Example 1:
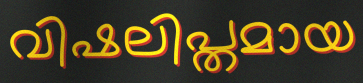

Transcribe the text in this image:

വിഷലിപ്തമായ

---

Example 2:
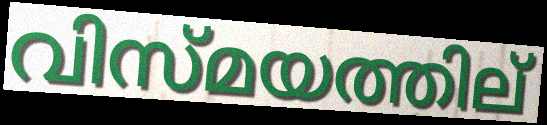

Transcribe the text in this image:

വിസ്മയത്തില്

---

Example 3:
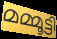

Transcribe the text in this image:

മമ്മൂട്ടി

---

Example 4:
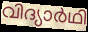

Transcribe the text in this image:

വിദ്യാർഥി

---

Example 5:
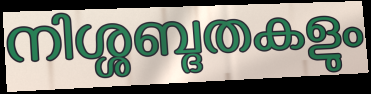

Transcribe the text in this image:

നിശ്ശബ്ദതകളും